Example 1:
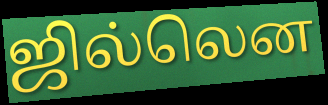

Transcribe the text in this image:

ஜில்லென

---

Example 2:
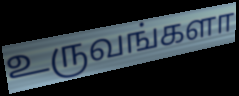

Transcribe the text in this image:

உருவங்களா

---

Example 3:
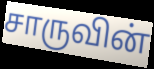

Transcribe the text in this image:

சாருவின்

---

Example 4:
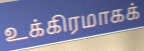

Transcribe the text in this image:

உக்கிரமாகக்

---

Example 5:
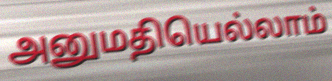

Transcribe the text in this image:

அனுமதியெல்லாம்